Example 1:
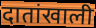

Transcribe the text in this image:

दातांखाली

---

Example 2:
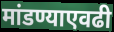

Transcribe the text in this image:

मांडण्याएवढी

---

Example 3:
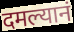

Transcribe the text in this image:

दमल्यानं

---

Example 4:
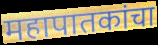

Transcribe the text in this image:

महापातकांचा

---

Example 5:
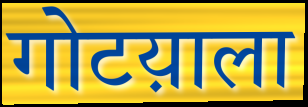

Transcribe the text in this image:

गोटय़ाला